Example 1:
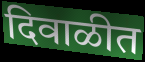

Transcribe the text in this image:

दिवाळीत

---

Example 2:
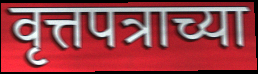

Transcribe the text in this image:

वृत्तपत्राच्या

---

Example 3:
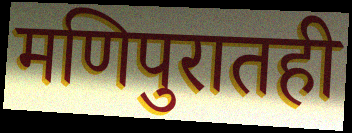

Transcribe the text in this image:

मणिपुरातही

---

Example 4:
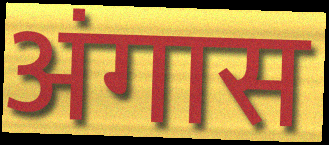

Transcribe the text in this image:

अंगास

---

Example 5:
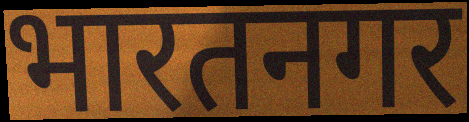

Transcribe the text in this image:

भारतनगर